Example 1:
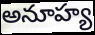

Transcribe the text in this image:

అనూహ్య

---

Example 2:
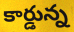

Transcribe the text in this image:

కార్డున్న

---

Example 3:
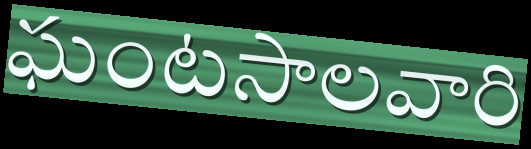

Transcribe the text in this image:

ఘంటసాలవారి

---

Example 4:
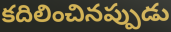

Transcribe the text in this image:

కదిలించినప్పుడు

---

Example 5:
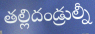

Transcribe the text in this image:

తల్లిదండ్రుల్నీ